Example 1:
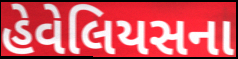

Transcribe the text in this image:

હેવેલિયસના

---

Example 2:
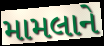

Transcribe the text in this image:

મામલાને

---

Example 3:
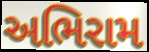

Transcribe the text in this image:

અભિરામ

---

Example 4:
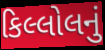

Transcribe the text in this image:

કિલ્લોલનું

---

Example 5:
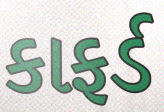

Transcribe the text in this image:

કાફર્ડ